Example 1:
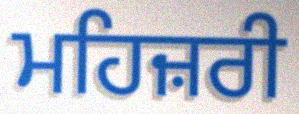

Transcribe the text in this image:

ਮਹਿਜ਼ਰੀ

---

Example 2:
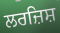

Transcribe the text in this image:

ਲਰਜ਼ਿਸ਼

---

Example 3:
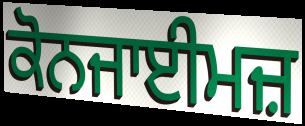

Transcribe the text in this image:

ਕੋਨਜਾਈਮਜ਼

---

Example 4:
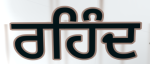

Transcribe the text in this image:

ਰਹਿੰਦ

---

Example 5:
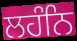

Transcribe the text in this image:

ਲਹੰਨਿ